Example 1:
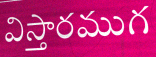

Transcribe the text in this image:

విస్తారముగ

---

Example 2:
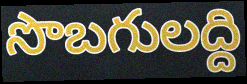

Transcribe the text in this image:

సొబగులద్ది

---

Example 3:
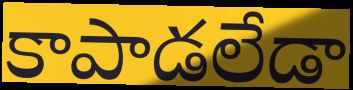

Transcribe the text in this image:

కాపాడలేడా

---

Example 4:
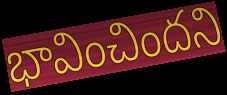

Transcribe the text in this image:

భావించిందని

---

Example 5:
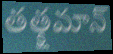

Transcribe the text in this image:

తత్క్షమాన్